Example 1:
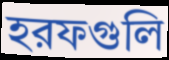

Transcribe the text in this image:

হরফগুলি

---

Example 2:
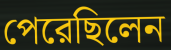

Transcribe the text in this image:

পেরেছিলেন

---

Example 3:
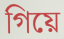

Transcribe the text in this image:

গিয়ে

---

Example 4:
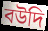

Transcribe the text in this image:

বউদি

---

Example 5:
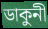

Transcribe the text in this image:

ডাকুনী